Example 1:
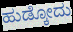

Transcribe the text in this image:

ಹುಡ್ಕೋದು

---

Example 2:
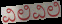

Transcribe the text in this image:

ವಿಲಿವಿಲಿ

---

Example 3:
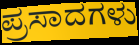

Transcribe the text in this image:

ಪ್ರಸಾದಗಳು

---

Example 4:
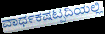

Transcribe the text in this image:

ವಾರ್ಧಕಷಟ್ಪದಿಯಲ್ಲಿ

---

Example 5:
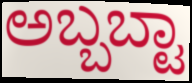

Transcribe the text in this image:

ಅಬ್ಬಬ್ಟಾ